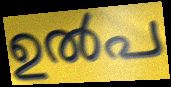
ഉൽപ